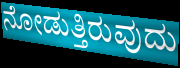
ನೋಡುತ್ತಿರುವುದು